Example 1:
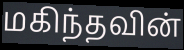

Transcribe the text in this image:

மகிந்தவின்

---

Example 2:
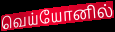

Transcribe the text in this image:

வெய்யோனில்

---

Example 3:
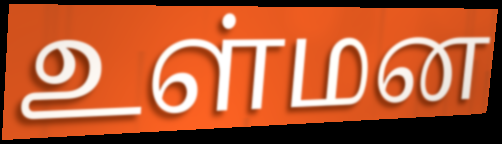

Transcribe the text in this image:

உள்மன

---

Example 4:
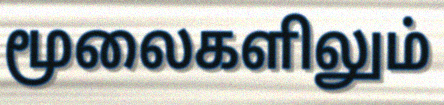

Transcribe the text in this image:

மூலைகளிலும்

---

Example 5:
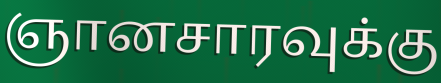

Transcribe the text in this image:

ஞானசாரவுக்கு